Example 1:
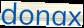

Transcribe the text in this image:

donax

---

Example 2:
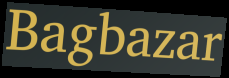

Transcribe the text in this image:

Bagbazar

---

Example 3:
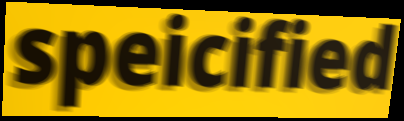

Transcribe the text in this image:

speicified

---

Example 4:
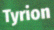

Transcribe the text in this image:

Tyrion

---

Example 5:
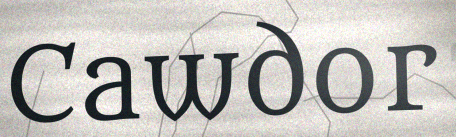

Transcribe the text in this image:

Cawdor